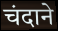
चंदाने